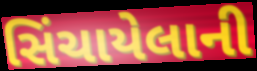
સિંચાયેલાની